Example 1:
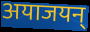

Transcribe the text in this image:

अयाजयन्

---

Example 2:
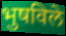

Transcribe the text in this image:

भुषविले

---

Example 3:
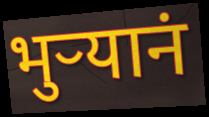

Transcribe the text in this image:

भुऱ्यानं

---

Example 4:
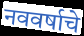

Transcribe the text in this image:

नववर्षाचे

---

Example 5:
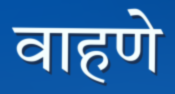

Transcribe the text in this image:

वाहणे